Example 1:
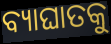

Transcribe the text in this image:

ବ୍ୟାଘାତକୁ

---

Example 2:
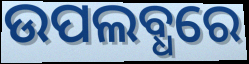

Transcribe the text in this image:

ଉପଲବ୍ଧରେ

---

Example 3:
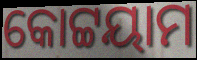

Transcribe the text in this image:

କୋଟ୍ଟୟାମ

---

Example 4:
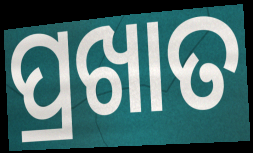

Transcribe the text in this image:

ପ୍ରଖାତ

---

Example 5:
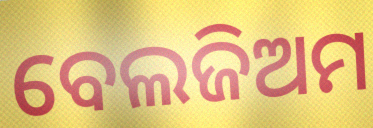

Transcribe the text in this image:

ବେଲଜିଅମ